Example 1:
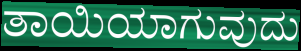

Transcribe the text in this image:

ತಾಯಿಯಾಗುವುದು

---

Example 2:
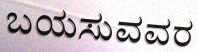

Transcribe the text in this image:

ಬಯಸುವವರ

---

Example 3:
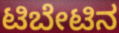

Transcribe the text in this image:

ಟಿಬೇಟಿನ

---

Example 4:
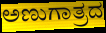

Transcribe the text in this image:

ಅಣುಗಾತ್ರದ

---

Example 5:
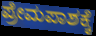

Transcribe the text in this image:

ಪ್ರೇಮಪಾಶಕ್ಕೆ